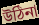
উঠিনা